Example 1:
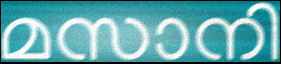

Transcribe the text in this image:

മസാനി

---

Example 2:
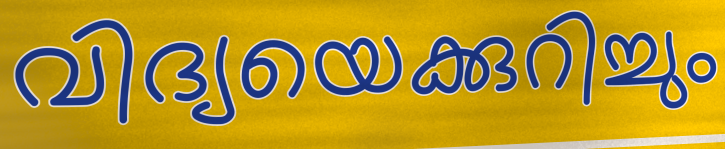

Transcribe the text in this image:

വിദ്യയെക്കുറിച്ചും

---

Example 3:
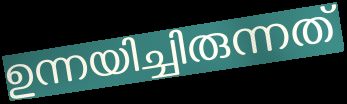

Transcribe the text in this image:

ഉന്നയിച്ചിരുന്നത്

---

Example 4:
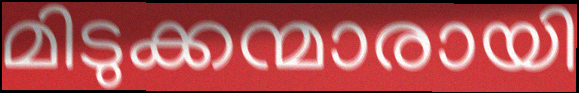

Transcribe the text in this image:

മിടുക്കന്മാരായി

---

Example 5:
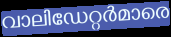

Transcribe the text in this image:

വാലിഡേറ്റർമാരെ